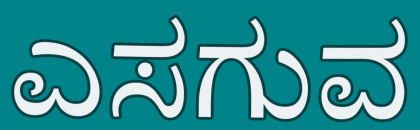
ಎಸಗುವ